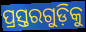
ପ୍ରସ୍ତରଗୁଡ଼ିକୁ